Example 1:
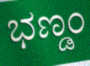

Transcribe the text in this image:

ಭಣ್ಡಂ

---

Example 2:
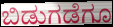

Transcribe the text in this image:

ಬಿಡುಗಡೆಗೂ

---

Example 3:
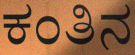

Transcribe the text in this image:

ಕಂತಿನ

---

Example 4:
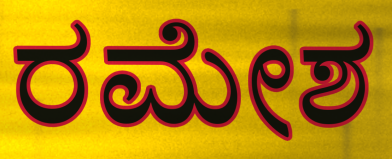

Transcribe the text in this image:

ರಮೇಶ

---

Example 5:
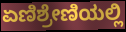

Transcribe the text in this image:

ಏಣಿಶ್ರೇಣಿಯಲ್ಲಿ